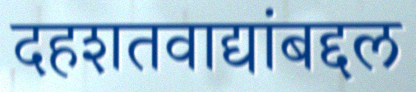
दहशतवाद्यांबद्दल